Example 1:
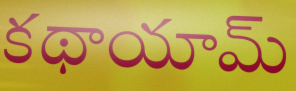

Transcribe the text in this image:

కథాయామ్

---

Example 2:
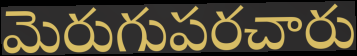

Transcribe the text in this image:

మెరుగుపరచారు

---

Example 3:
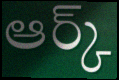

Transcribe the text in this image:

ఆర్క్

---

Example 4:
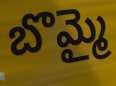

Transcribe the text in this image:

బొమ్మై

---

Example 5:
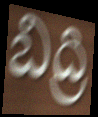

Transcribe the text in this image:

బిద్రి